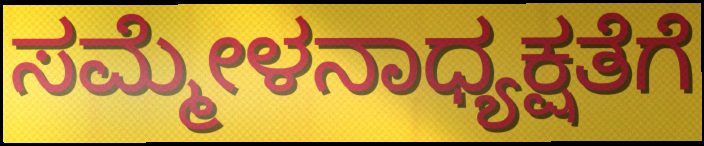
ಸಮ್ಮೇಳನಾಧ್ಯಕ್ಷತೆಗೆ